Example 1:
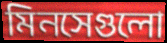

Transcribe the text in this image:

মিনসেগুলো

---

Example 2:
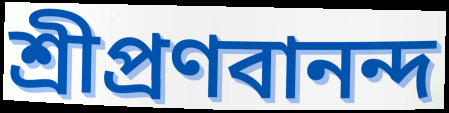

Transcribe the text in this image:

শ্রীপ্রণবানন্দ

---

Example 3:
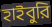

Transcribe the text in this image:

হাইবুরি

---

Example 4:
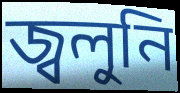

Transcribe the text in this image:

জ্বলুনি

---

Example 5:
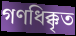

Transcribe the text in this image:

গণধিক্কৃত